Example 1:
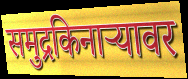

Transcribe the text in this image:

समुद्रकिनाऱ्यावर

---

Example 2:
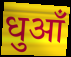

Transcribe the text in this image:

धुआँ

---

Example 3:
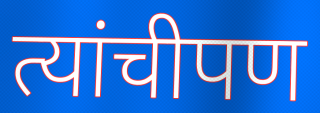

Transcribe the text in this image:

त्यांचीपण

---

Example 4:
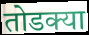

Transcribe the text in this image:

तोडक्या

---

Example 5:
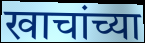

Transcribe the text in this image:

खाचांच्या